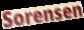
Sorensen